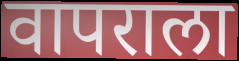
वापराला